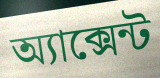
অ্যাক্সেন্ট